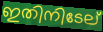
ഇതിനിടേല്